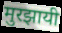
मुरझायी